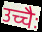
उच्चैः